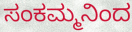
ಸಂಕಮ್ಮನಿಂದ